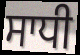
ਸਾਧੀ